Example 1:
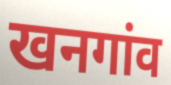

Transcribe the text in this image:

खनगांव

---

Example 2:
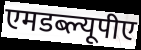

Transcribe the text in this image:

एमडब्ल्यूपीए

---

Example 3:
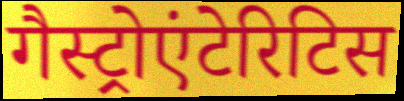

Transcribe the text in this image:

गैस्ट्रोएंटेरिटिस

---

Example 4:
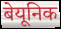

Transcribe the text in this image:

बेयूनिक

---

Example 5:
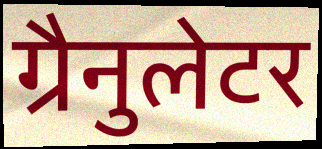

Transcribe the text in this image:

ग्रैनुलेटर